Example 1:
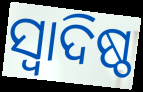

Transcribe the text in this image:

ସ୍ୱାଦିଷ୍ଠ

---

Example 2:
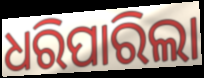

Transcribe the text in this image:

ଧରିପାରିଲା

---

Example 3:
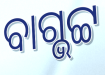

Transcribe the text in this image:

ବାଗ୍ଭଟ୍ଟ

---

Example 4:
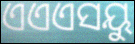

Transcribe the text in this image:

ଏଏଏସୟୁ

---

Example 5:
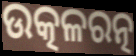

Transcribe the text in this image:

ଉତ୍କଳରତ୍ନ